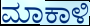
ಮಾಕಾಳಿ